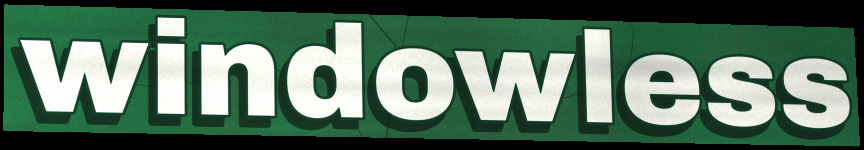
windowless